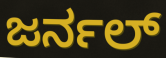
ಜರ್ನಲ್